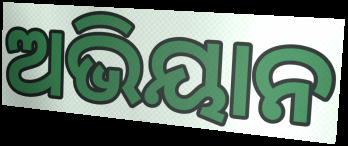
ଅଭିୟାନ